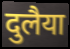
दुलैया